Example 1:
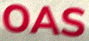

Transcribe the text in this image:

OAS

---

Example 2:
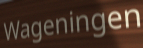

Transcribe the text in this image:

Wageningen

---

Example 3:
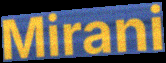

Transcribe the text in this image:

Mirani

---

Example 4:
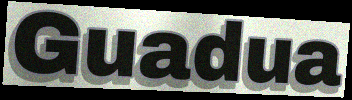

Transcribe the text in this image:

Guadua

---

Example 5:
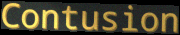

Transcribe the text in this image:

Contusion